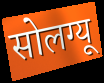
सोलग्यू